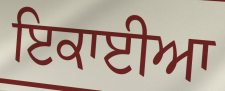
ਇਕਾਈਆ